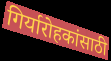
गिर्यारोहकांसाठी